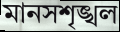
মানসশৃঙ্খল